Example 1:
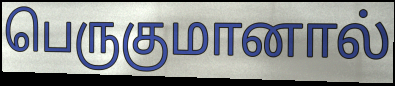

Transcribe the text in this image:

பெருகுமானால்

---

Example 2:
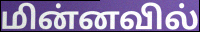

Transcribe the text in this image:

மின்னவில்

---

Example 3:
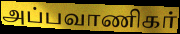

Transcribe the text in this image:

அப்பவாணிகர்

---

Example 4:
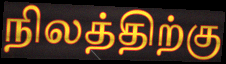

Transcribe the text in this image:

நிலத்திற்கு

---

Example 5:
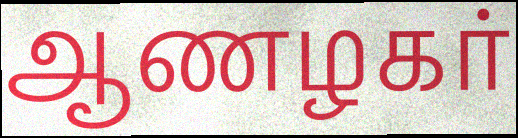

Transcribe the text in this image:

ஆணழகர்